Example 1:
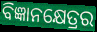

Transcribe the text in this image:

ବିଜ୍ଞାନକ୍ଷେତ୍ରର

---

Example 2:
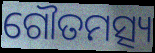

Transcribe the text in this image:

ଗୌତମତ୍ସ୍ୟ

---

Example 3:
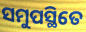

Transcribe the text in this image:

ସମୁପସ୍ଥିତେ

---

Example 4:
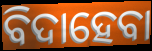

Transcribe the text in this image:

ବିଦାହେବା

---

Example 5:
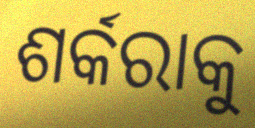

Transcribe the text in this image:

ଶର୍କରାକୁ